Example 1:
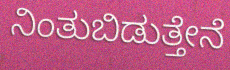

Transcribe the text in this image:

ನಿಂತುಬಿಡುತ್ತೇನೆ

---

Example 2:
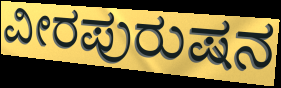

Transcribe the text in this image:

ವೀರಪುರುಷನ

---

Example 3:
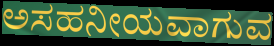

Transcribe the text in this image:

ಅಸಹನೀಯವಾಗುವ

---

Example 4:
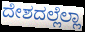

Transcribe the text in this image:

ದೇಶದಲ್ಲೆಲ್ಲಾ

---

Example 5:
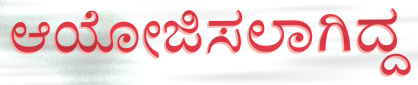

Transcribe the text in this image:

ಆಯೋಜಿಸಲಾಗಿದ್ದ